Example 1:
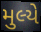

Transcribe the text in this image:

મુલ્યે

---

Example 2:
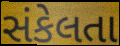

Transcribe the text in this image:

સંકેલતા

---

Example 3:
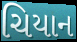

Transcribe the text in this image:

ચિયાન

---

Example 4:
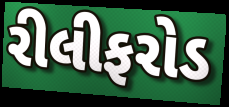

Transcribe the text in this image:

રીલીફરોડ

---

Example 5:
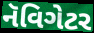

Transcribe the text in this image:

નૅવિગેટર